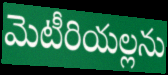
మెటీరియల్లను